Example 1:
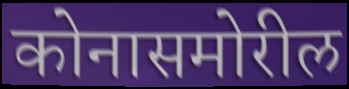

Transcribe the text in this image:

कोनासमोरील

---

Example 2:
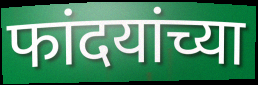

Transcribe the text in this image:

फांदयांच्या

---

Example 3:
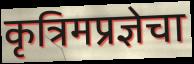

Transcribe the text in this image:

कृत्रिमप्रज्ञेचा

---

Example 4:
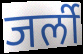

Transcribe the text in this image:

जर्ली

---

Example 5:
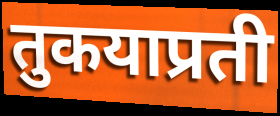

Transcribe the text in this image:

तुकयाप्रती